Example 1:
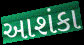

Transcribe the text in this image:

આશંકા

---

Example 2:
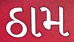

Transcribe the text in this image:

ઠામ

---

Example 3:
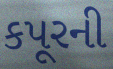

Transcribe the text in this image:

કપૂરની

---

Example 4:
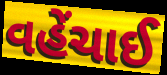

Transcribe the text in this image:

વહેંચાઈ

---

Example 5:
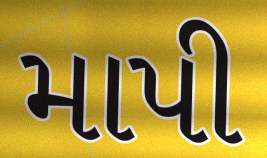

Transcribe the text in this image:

માપી